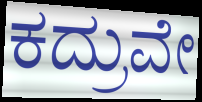
ಕದ್ರುವೇ